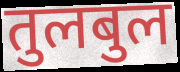
तुलबुल